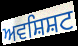
ਅਵਸ਼ਿਸ਼ਟ